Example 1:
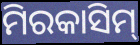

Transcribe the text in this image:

ମିରକାସିମ୍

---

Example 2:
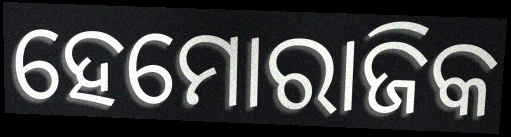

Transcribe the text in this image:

ହେମୋରାଜିକ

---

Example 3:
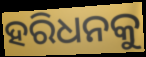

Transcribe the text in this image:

ହରିଧନକୁ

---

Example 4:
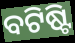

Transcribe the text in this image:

ବଟିଷ୍ଟି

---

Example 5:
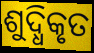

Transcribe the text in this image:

ଶୁଦ୍ଧିକୃତ